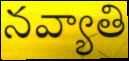
నవ్యాతి